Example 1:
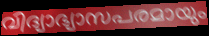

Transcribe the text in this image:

വിദ്യാഭ്യാസപരമായും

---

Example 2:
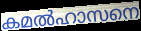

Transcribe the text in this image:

കമൽഹാസനെ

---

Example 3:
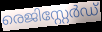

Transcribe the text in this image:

രെജിസ്റ്റേർഡ്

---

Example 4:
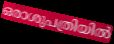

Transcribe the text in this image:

ഒരാശുപത്രിയിൽ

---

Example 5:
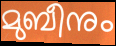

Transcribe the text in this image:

മുബീനും